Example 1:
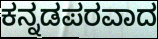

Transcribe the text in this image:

ಕನ್ನಡಪರವಾದ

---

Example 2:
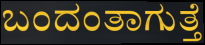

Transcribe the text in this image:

ಬಂದಂತಾಗುತ್ತೆ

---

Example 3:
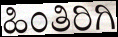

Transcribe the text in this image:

ಹಿಂತಿರಿಗಿ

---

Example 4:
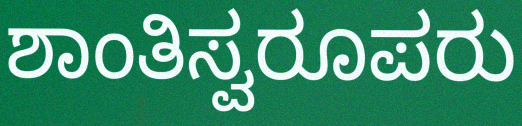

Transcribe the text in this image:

ಶಾಂತಿಸ್ವರೂಪರು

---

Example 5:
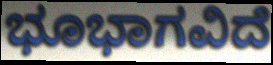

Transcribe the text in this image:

ಭೂಭಾಗವಿದೆ